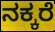
ನಕ್ಕರೆ